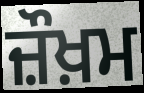
ਜ਼ੌਖ਼ਮ